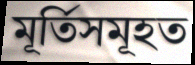
মূৰ্তিসমূহত